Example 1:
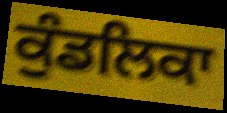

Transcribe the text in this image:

ਕੁੰਡਲਿਕਾ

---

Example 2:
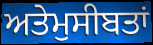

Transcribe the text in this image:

ਅਤੇਮੁਸੀਬਤਾਂ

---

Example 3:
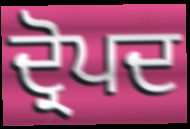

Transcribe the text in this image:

ਦ੍ਰੋਪਦ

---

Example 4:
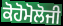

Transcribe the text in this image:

ਕੋਹੋਮੋਲੋਜੀ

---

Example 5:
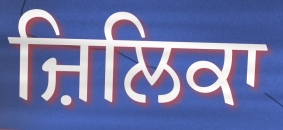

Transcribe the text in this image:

ਜ਼ਿਲਿਕਾ